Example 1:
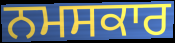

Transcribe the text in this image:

ਨਮਸਕਾਰ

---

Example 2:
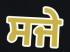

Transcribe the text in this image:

ਸਜੇ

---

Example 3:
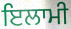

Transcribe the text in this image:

ਇਲਾਮੀ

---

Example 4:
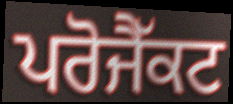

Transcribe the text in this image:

ਪਰੋਜੈੱਕਟ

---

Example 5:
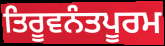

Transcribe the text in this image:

ਤਿਰੂਵਨੰਤਪੂਰਮ